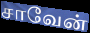
சாவேன்